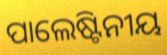
ପାଲେଷ୍ଟିନୀୟ